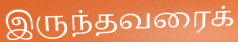
இருந்தவரைக்